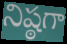
నిష్ఠగా